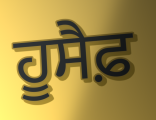
ਹੂਸੈਫ਼